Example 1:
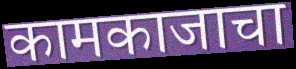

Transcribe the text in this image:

कामकाजाचा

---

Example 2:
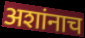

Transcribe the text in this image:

अशांनाच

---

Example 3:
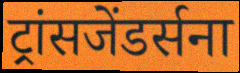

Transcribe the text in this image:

ट्रांसजेंडर्सना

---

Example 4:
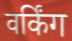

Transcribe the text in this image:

वर्किंग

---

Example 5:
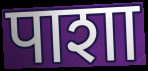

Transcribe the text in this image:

पाशा